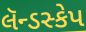
લૅન્ડસ્કેપ